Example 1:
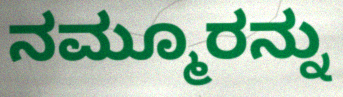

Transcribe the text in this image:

ನಮ್ಮೂರನ್ನು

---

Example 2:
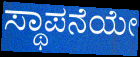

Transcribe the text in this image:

ಸ್ಥಾಪನೆಯೇ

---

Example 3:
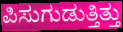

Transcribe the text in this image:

ಪಿಸುಗುಡುತ್ತಿತ್ತು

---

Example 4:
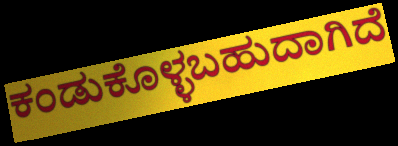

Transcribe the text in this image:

ಕಂಡುಕೊಳ್ಳಬಹುದಾಗಿದೆ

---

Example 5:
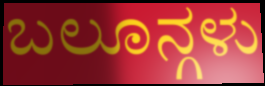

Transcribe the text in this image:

ಬಲೂನ್ಗಳು